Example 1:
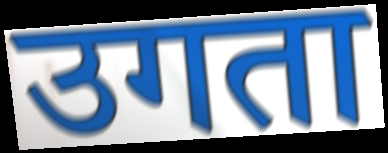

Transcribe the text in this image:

उगता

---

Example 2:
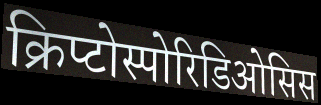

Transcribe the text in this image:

क्रिप्टोस्पोरिडिओसिस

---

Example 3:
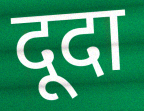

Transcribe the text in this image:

दूदा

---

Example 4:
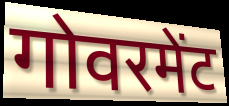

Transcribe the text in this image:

गोवरमेंट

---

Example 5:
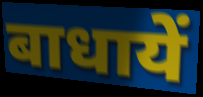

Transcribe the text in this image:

बाधायें